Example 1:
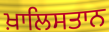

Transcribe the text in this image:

ਖ਼ਾਲਿਸਤਾਨ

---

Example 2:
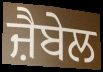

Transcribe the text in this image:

ਜ਼ੈਬੇਲ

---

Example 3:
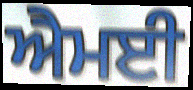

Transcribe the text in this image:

ਐਮਈ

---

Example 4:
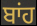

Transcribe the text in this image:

ਬਾਂਹ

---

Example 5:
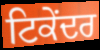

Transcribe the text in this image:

ਟਿਕੇਂਦਰ